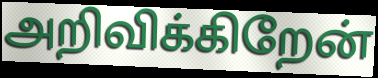
அறிவிக்கிறேன்